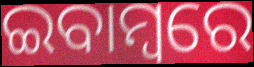
ଇବାମ୍ବରେ